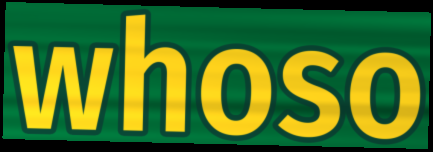
whoso